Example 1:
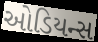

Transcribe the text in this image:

ઓડિયન્સ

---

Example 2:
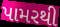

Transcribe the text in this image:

પામરથી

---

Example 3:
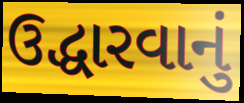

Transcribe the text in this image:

ઉદ્ધારવાનું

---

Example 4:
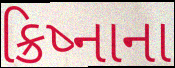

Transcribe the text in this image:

ક્રિષ્નાના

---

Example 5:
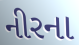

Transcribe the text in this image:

નીરના